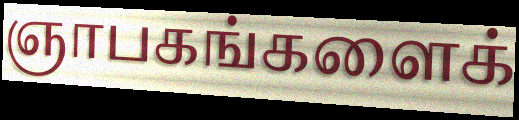
ஞாபகங்களைக்